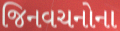
જિનવચનોના